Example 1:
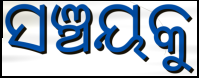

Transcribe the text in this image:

ସଞ୍ଚୟକୁ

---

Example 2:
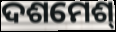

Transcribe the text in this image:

ଦଶମେଶ୍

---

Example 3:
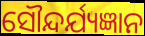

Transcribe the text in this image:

ସୌନ୍ଦର୍ଯ୍ୟଜ୍ଞାନ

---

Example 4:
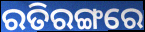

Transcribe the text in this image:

ରତିରଙ୍ଗରେ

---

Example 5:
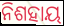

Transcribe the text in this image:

ନିଶହାୟ